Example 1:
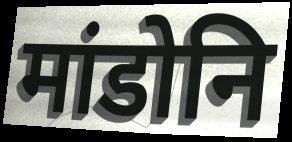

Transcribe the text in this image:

मांडोनि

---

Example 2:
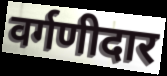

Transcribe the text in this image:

वर्गणीदार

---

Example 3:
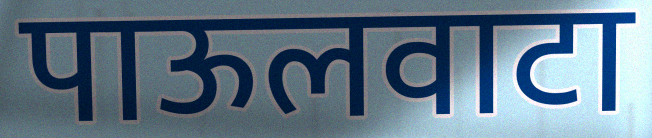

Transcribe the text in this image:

पाऊलवाटा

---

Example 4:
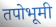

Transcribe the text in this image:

तपोभूमी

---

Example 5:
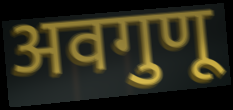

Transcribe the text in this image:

अवगुणू